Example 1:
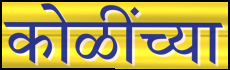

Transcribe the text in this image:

कोळींच्या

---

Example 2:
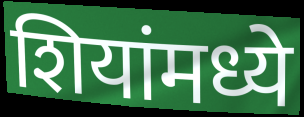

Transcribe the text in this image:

शियांमध्ये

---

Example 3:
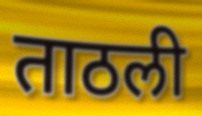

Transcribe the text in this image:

ताठली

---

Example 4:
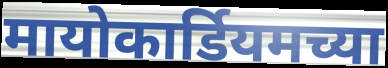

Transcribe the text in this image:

मायोकार्डियमच्या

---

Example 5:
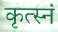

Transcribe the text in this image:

कृत्स्नं